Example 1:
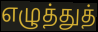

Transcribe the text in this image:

எழுத்துத்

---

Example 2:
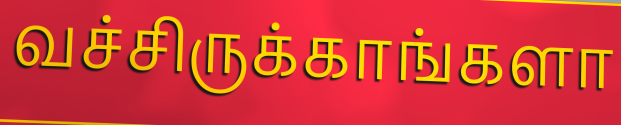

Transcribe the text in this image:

வச்சிருக்காங்களா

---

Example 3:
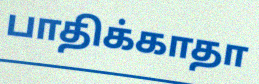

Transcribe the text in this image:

பாதிக்காதா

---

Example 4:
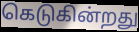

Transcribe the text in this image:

கெடுகின்றது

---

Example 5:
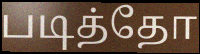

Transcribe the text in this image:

படித்தோ